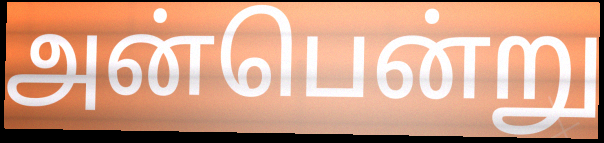
அன்பென்று